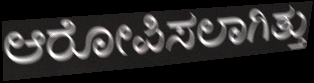
ಆರೋಪಿಸಲಾಗಿತ್ತು